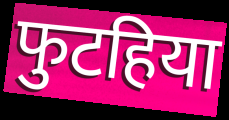
फुटहिया